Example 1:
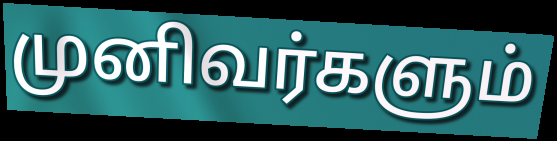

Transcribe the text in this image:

முனிவர்களும்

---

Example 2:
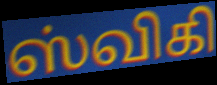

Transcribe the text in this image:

ஸ்விகி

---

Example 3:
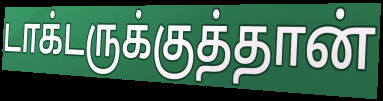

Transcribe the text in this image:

டாக்டருக்குத்தான்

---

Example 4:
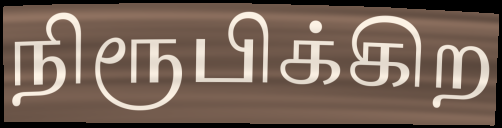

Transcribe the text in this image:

நிரூபிக்கிற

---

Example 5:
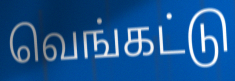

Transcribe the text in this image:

வெங்கட்டு